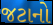
જટાનો